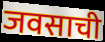
जवसाची